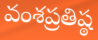
వంశప్రతిష్ఠ